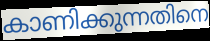
കാണിക്കുന്നതിനെ